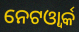
ନେଟଓ୍ବାର୍କ